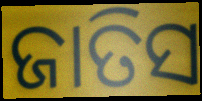
ଜାତିସ